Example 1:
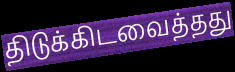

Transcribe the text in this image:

திடுக்கிடவைத்தது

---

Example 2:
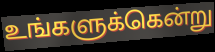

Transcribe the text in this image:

உங்களுக்கென்று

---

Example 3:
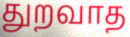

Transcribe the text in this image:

துறவாத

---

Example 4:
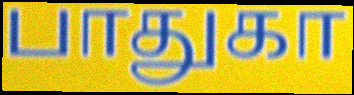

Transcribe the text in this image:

பாதுகா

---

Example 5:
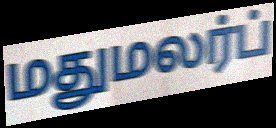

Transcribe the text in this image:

மதுமலர்ப்